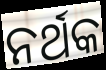
ନର୍ଥକ